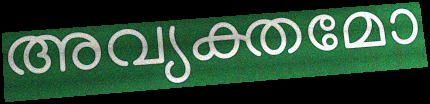
അവ്യക്തമോ